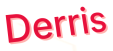
Derris